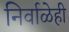
निर्वाळेही